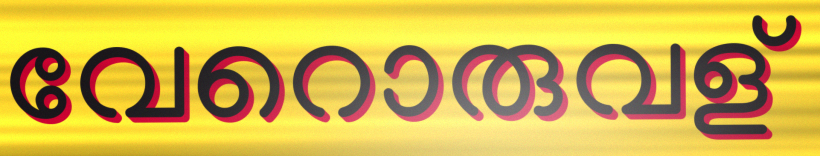
വേറൊരുവള്